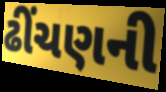
ઢીંચણની